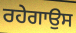
ਰਹੇਗਾਉਸ